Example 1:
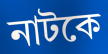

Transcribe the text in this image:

নাটকে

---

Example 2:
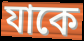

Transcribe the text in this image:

যাকে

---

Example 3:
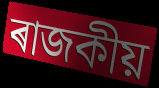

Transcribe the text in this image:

ৰাজকীয়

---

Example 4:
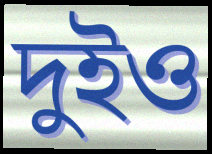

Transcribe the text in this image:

দুইও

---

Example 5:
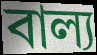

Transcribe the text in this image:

বাল্য